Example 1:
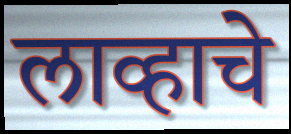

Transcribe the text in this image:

लाव्हाचे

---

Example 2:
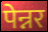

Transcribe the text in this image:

पेन्नर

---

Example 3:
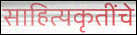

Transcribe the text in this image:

साहित्यकृतींचे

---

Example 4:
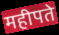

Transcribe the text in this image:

महीपते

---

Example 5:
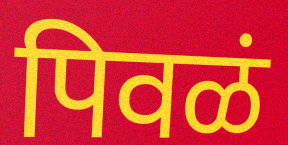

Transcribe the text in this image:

पिवळं